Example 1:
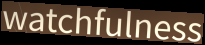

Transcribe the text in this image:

watchfulness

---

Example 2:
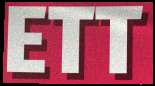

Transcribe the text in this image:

ETT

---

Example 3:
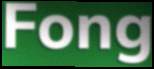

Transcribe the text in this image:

Fong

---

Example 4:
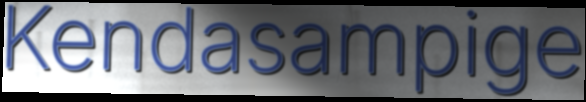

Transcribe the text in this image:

Kendasampige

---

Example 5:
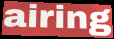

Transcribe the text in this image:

airing